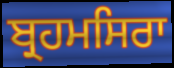
ਬ੍ਰਹਮਸਿਰਾ